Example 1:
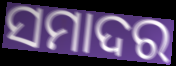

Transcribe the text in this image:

ସମାଦର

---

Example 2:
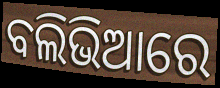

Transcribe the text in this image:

ବଲିଭିଆରେ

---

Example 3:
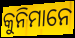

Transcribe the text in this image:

କୁନିମାନେ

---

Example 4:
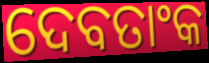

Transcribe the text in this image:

ଦେବତାଂକ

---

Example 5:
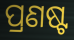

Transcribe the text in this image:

ପ୍ରଣଷ୍ଟ